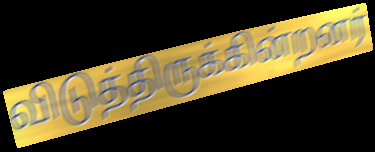
விடுத்திருக்கின்றனர்